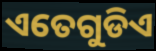
ଏତେଗୁଡିଏ